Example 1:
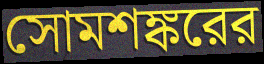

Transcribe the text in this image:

সোমশঙ্করের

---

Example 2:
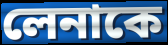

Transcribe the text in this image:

লেনাকে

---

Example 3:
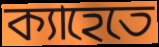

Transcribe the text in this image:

ক্যাহেতে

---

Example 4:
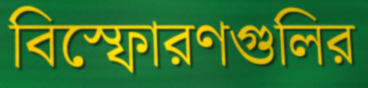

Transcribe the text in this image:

বিস্ফোরণগুলির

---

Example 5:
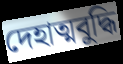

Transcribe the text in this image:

দেহাত্মবুদ্ধি